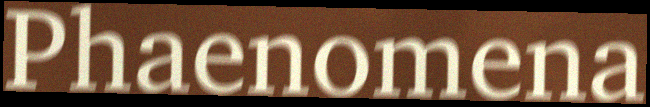
Phaenomena